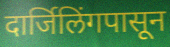
दार्जिलिंगपासून